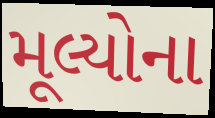
મૂલ્યોના